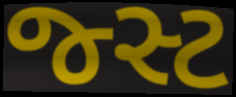
જ્સ્ટ